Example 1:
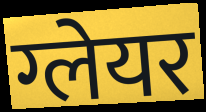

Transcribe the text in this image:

ग्लेयर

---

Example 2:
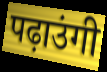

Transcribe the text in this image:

पढ़ाउंगी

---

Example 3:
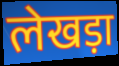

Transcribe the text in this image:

लेखड़ा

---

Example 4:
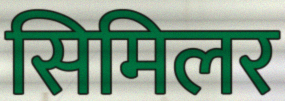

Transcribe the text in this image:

सिमिलर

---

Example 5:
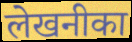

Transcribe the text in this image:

लेखनीका